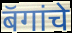
बॅगांचे